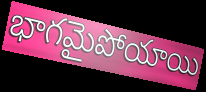
భాగమైపోయాయి